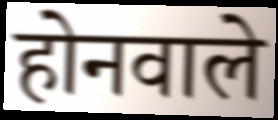
होनवाले